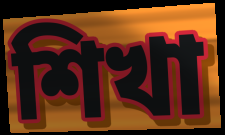
শিখা